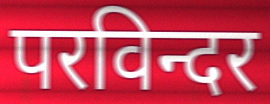
परविन्दर